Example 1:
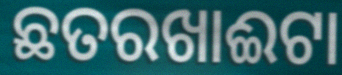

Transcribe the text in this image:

ଛତରଖାଈଟା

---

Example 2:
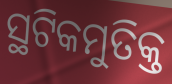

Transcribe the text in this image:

ସ୍ଥଟିକମୁତିକ୍ତ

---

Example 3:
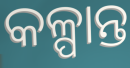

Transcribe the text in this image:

କଳ୍ପାନ୍ତ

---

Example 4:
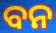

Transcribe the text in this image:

ବନ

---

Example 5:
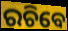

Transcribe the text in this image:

ରଚିବେ